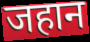
जहान